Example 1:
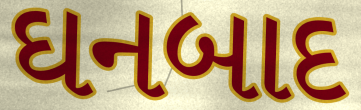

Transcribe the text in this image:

ઘનબાદ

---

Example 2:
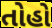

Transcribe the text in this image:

તોહો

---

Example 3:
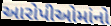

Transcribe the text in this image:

આરોપીઓમાંનો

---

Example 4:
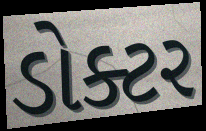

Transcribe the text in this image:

ડોક્ટર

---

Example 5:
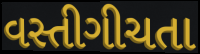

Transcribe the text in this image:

વસ્તીગીચતા